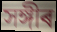
সঙ্গীৰ